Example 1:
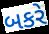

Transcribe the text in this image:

બકરે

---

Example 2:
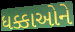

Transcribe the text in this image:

ધક્કાઓને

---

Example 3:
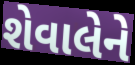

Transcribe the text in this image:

શેવાલેને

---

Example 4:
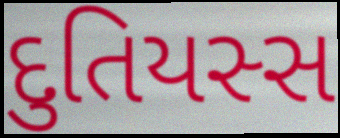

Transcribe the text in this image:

દુતિયસ્સ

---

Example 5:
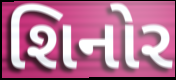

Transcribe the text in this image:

શિનોર